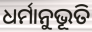
ଧର୍ମାନୁଭୂତି